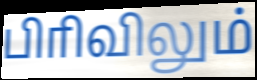
பிரிவிலும்